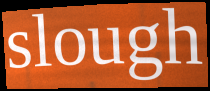
slough